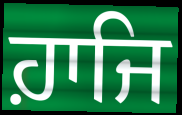
ਹ਼ਾਜਿ